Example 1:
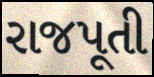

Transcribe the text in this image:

રાજપૂતી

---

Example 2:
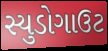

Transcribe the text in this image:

સ્યુડોગાઉટ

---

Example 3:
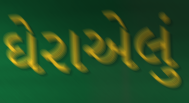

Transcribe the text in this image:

ઘેરાએલું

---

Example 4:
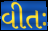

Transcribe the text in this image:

વીતઃ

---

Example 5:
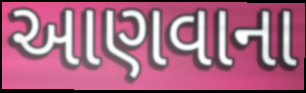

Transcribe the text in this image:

આણવાના